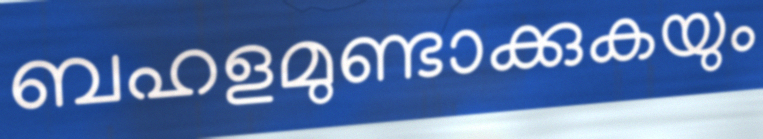
ബഹളമുണ്ടാക്കുകയും